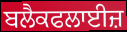
ਬਲੈਕਫਲਾਈਜ਼